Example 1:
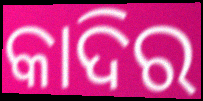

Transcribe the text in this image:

କାଦିର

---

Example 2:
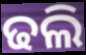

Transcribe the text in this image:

ଢଲି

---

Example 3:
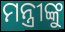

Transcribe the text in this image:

ମନ୍ତ୍ରୀଙ୍କୁ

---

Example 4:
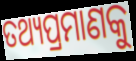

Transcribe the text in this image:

ତଥ୍ୟପ୍ରମାଣକୁ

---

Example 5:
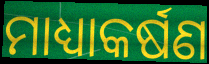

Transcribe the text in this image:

ମାଧ୍ୟାକର୍ଷଣ